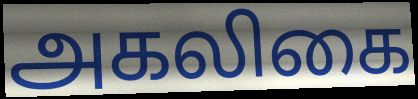
அகலிகை